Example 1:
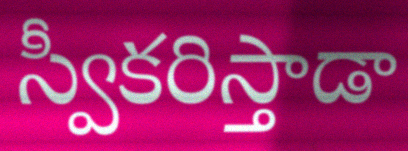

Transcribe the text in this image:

స్వీకరిస్తాడా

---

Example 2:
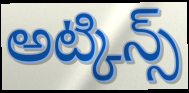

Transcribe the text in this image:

అట్కిన్స్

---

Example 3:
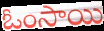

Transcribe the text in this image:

ఓంసాయి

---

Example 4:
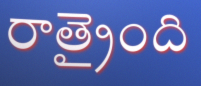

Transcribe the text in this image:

రాత్రైంది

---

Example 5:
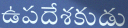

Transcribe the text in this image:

ఉపదేశకుడు